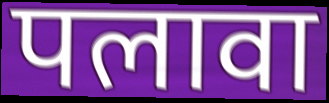
पलावा